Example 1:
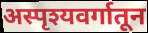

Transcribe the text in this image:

अस्पृश्यवर्गातून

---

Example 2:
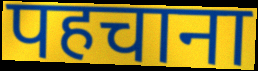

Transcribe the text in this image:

पहचाना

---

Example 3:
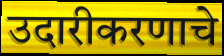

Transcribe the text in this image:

उदारीकरणाचे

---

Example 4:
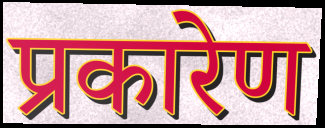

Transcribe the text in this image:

प्रकारेण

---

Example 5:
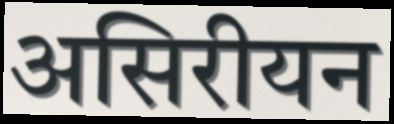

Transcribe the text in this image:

असिरीयन